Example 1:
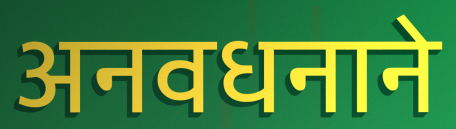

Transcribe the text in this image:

अनवधनाने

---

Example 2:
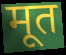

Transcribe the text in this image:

मूत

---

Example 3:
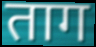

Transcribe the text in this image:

ताग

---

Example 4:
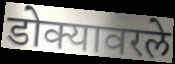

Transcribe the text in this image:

डोक्यावरले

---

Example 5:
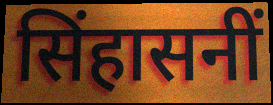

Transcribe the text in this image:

सिंहासनीं